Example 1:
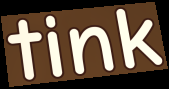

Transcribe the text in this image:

tink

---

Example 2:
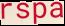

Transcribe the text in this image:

rspa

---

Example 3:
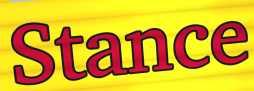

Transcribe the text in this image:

Stance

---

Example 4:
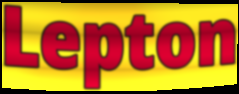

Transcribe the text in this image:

Lepton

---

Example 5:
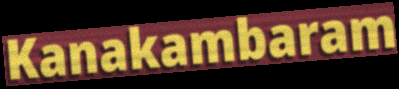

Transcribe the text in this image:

Kanakambaram